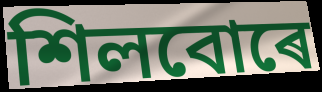
শিলবোৰে